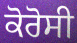
ਕੋਰੋਸੀ